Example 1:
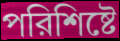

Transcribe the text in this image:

পরিশিষ্টে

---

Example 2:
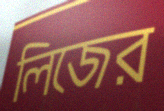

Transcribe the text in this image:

লিজের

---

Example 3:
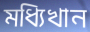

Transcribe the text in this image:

মধ্যিখান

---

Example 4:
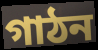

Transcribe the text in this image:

গাঠন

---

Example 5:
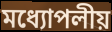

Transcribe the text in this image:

মধ্যোপলীয়